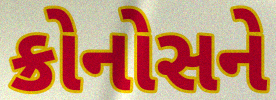
ક્રોનોસને